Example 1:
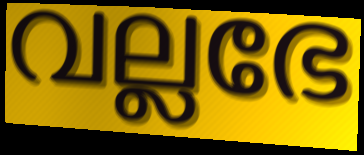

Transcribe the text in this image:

വല്ലഭേ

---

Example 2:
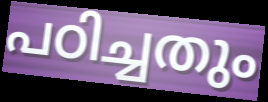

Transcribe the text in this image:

പഠിച്ചതും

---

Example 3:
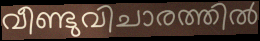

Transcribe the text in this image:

വീണ്ടുവിചാരത്തിൽ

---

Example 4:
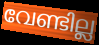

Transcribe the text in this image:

വേണ്ടില്ല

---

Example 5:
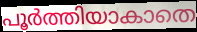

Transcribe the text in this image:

പൂർത്തിയാകാതെ